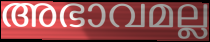
അഭാവമല്ല